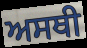
ਅਸਥੀ